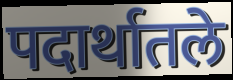
पदार्थातले